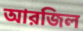
আরজিল